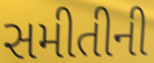
સમીતીની